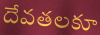
దేవతలకూ